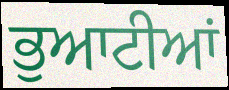
ਭੁਆਟੀਆਂ